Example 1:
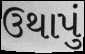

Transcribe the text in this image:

ઉથાપું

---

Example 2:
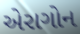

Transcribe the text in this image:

એરાગોન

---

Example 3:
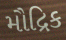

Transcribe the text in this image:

મૌદ્રિક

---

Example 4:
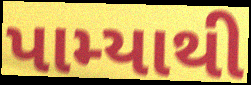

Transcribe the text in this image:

પામ્યાથી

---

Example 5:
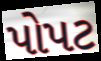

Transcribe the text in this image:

પોપટ